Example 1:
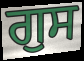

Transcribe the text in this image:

ਗੁਸ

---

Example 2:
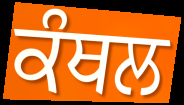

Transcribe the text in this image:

ਕੰਥਲ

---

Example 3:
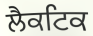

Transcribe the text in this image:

ਲੈਕਟਿਕ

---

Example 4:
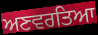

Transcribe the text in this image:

ਅਣਵਰਤਿਆ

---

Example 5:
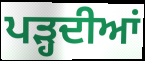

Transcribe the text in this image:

ਪੜ੍ਹਦੀਆਂ